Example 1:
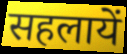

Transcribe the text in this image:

सहलायें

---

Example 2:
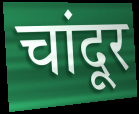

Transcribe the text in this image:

चांदूर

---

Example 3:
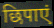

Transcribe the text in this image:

छिपाएं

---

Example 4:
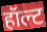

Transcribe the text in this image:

हॉल्‍ट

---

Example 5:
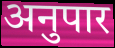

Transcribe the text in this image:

अनुपार